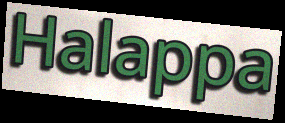
Halappa